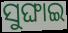
ସୁଙ୍ଘାଇ